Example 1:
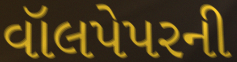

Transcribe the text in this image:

વૉલપેપરની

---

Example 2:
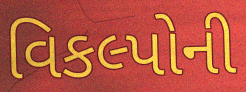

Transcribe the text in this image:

વિકલ્પોની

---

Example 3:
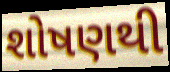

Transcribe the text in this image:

શોષણથી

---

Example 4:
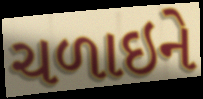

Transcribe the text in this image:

ચળાઇને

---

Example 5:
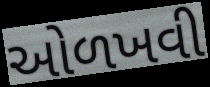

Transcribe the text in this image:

ઓળખવી